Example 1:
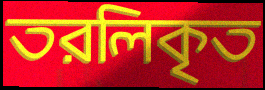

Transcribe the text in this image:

তরলিকৃত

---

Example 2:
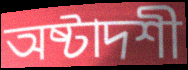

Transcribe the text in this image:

অষ্টাদশী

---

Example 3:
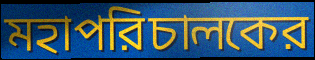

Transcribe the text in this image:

মহাপরিচালকের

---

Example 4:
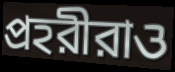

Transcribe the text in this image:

প্রহরীরাও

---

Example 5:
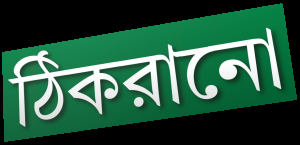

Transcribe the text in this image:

ঠিকরানো